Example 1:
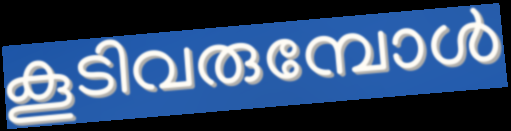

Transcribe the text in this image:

കൂടിവരുമ്പോൾ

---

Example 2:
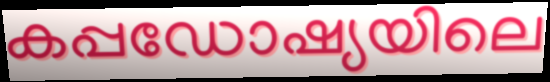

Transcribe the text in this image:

കപ്പഡോഷ്യയിലെ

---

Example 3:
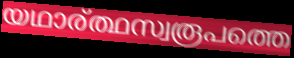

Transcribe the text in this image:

യഥാര്ത്ഥസ്വരൂപത്തെ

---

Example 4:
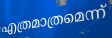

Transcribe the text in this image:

എത്രമാത്രമെന്ന്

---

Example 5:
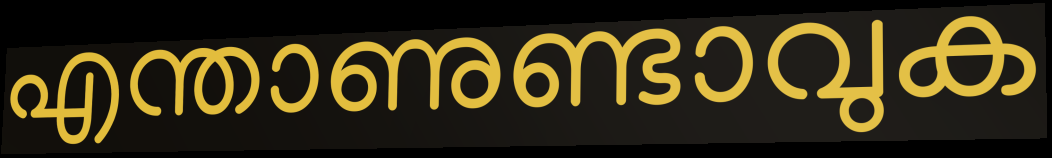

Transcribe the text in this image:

എന്താണുണ്ടാവുക